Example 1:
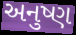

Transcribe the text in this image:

અનુષ્ણ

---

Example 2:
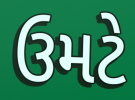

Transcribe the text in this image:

ઉમટે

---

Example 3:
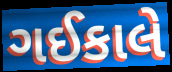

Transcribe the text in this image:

ગઈકાલે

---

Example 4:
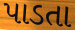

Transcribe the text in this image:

પાડતા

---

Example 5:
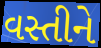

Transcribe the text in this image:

વસ્તીને